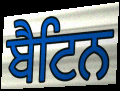
ਬੈਟਿਨ